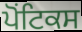
ਪੋਂਟਿਕਸ